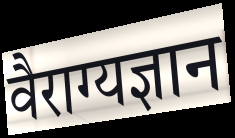
वैराग्यज्ञान